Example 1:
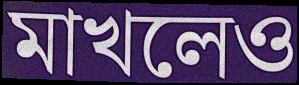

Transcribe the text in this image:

মাখলেও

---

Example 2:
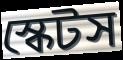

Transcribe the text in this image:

স্কেটস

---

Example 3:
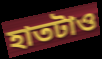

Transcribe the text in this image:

হাতটাও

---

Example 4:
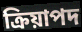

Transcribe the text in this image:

ক্রিয়াপদ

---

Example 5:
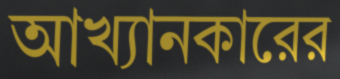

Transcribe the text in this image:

আখ্যানকারের